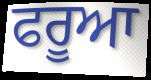
ਫਰੂਆ